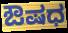
ಔಷಧ